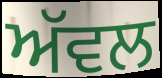
ਅੱਵਲ